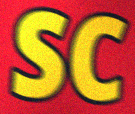
SC